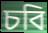
চবি